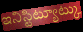
ఇనిస్టిట్యూట్కు